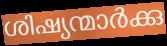
ശിഷ്യന്മാർക്കു